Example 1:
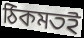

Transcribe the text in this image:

ঠিকমতই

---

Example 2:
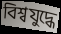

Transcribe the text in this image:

বিশ্বযুদ্ধে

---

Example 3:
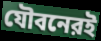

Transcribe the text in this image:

যৌবনেরই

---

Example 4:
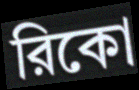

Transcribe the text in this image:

রিকো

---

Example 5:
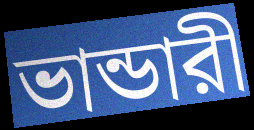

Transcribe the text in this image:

ভান্ডারী